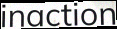
inaction